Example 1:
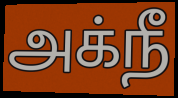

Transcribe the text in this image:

அக்நீ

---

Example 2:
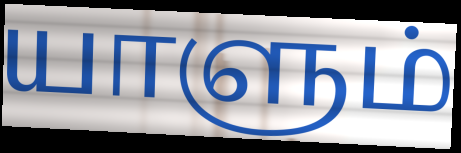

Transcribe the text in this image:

யாளும்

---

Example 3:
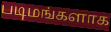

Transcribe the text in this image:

படிமங்களாக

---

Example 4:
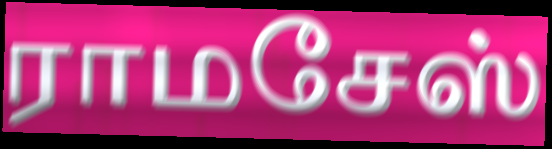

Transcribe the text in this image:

ராமசேஸ்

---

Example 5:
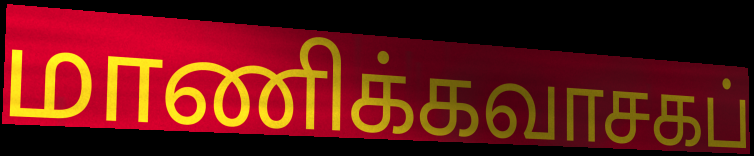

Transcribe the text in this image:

மாணிக்கவாசகப்